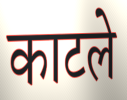
काटले